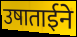
उषाताईने